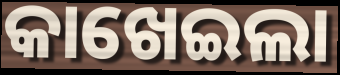
କାଖେଇଲା